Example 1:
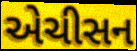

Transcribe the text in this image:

એચીસન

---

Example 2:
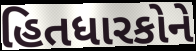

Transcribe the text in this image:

હિતધારકોને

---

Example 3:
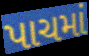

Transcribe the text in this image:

પાચમાં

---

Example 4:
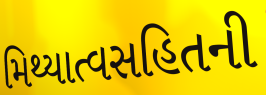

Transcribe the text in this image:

મિથ્યાત્વસહિતની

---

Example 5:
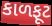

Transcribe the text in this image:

કાળફૂટ